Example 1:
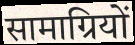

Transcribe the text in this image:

सामाग्रियों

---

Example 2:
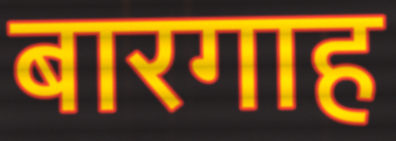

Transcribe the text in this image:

बारगाह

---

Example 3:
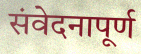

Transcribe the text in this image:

संवेदनापूर्ण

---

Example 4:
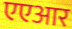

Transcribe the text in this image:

एएआर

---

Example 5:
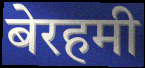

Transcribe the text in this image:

बेरहमी